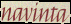
navinta